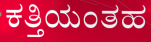
ಕತ್ತಿಯಂತಹ